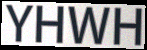
YHWH